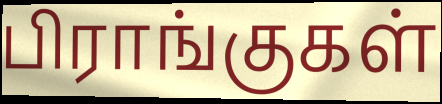
பிராங்குகள்